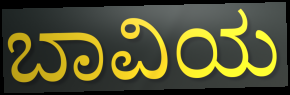
ಬಾವಿಯ